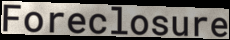
Foreclosure